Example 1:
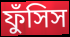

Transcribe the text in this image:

ফুঁসিস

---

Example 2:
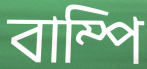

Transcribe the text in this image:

বাম্পি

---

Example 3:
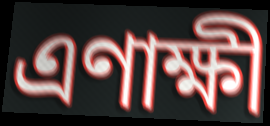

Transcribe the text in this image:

এণাক্ষী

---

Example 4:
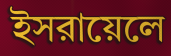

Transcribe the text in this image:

ইসরায়েলে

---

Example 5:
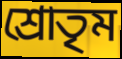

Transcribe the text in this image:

শ্রোতৃম